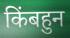
किंबहुन